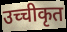
उच्चीकृत